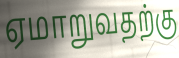
ஏமாறுவதற்கு